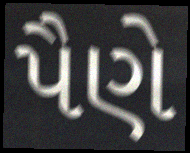
પૈણે